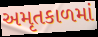
અમૃતકાળમાં